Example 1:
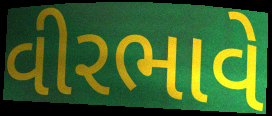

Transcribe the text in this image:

વીરભાવે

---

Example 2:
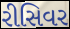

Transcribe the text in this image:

રીસિવર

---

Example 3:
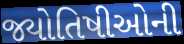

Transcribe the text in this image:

જ્યોતિષીઓની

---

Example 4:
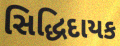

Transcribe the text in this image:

સિદ્ધિદાયક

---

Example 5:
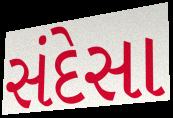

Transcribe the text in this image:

સંદેસા